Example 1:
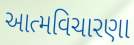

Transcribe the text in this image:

આત્મવિચારણા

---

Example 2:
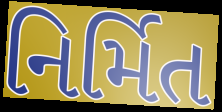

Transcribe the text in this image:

નિર્મિત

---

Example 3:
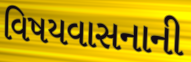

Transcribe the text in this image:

વિષયવાસનાની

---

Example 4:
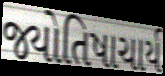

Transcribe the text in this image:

જ્યોતિષાચાર્ય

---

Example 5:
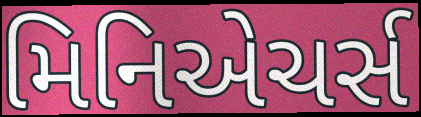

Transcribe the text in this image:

મિનિએચર્સ